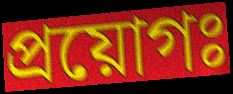
প্রয়োগঃ